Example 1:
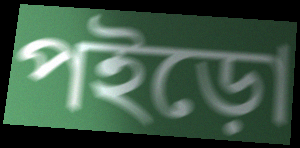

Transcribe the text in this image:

পইড়ো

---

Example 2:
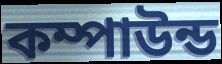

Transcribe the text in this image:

কম্পাউন্ড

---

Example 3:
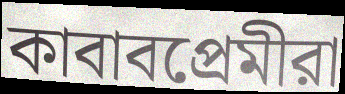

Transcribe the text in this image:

কাবাবপ্রেমীরা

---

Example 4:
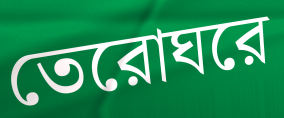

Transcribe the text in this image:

তেরোঘরে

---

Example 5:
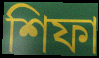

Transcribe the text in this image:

শিফা